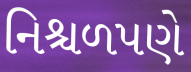
નિશ્ચળપણે